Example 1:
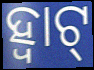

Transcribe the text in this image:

ହ୍ବାଟ୍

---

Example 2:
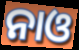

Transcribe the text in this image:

ନାଓ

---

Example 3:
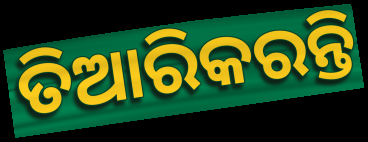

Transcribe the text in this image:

ତିଆରିକରନ୍ତି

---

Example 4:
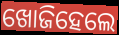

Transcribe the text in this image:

ଖୋଜିହେଲେ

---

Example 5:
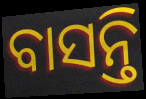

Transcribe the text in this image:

ବାସନ୍ତି